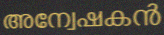
അന്വേഷകൻ